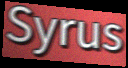
Syrus